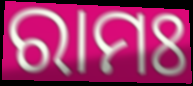
ରାମଃ